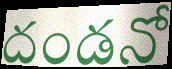
దండనో